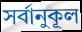
সর্বানুকূল